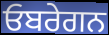
ਓਬਰੇਗਨ